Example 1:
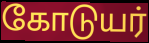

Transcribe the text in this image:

கோடுயர்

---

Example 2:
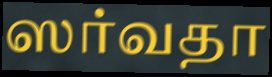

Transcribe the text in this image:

ஸர்வதா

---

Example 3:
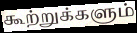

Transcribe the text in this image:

கூற்றுக்களும்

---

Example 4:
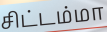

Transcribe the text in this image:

சிட்டம்மா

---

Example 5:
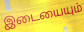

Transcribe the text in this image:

இடையையும்